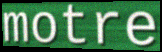
motre